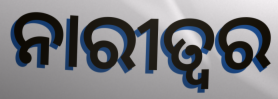
ନାରୀତ୍ୱର